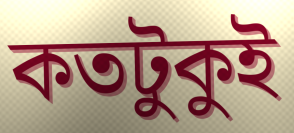
কতটুকুই